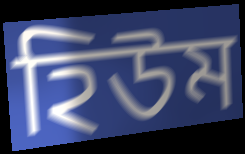
হিউম